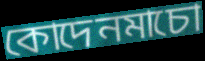
কোদেনমাচো